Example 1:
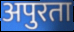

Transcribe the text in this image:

अपुरता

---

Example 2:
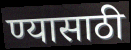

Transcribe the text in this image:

ण्यासाठी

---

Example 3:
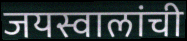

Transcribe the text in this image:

जयस्वालांची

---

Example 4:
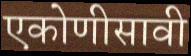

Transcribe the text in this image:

एकोणीसावी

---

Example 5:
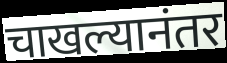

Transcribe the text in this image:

चाखल्यानंतर